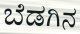
ಬೆಡಗಿನ